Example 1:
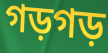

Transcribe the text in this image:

গড়গড়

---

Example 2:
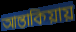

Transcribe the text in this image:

আন্তাকিয়ায়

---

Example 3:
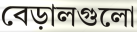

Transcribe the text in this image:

বেড়ালগুলো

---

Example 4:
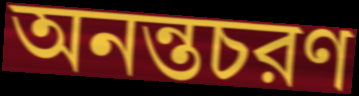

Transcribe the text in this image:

অনন্তচরণ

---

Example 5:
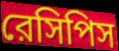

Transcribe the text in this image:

রেসিপিস